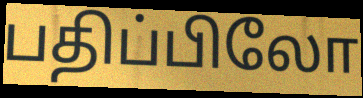
பதிப்பிலோ